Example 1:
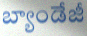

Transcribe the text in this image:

బ్యాండేజీ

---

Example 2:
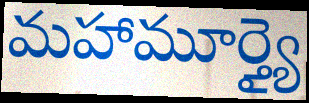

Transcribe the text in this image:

మహామూర్త్యై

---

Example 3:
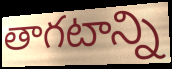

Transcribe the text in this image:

తాగటాన్ని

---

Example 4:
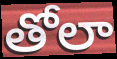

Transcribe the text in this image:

తోలా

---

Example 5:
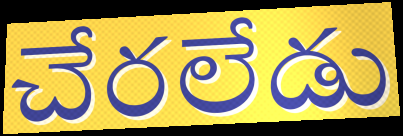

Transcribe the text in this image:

చేరలేడు